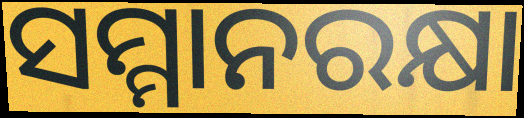
ସମ୍ମାନରକ୍ଷା